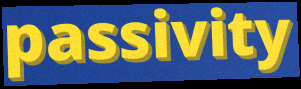
passivity